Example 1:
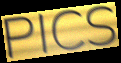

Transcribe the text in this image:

PICS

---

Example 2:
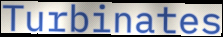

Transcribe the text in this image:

Turbinates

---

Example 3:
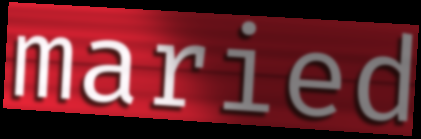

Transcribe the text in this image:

maried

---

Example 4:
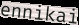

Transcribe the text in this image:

ennikai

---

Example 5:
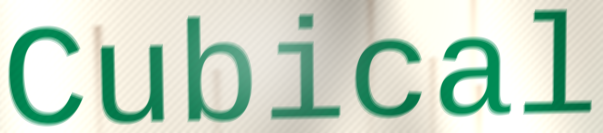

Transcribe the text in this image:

Cubical